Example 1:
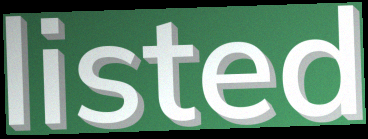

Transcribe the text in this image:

listed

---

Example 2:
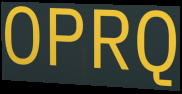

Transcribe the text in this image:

OPRQ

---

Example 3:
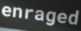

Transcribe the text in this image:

enraged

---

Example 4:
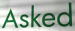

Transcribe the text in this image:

Asked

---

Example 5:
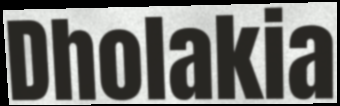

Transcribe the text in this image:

Dholakia